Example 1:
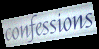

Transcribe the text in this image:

confessions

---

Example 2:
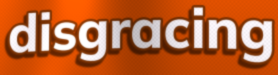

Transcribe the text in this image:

disgracing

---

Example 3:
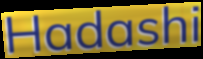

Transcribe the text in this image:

Hadashi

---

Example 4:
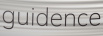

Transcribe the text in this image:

guidence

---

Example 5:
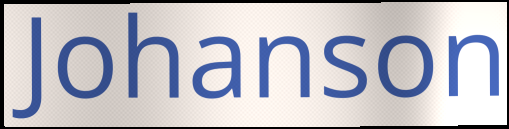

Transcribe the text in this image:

Johanson